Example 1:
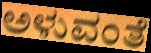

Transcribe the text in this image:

ಅಳುವಂತೆ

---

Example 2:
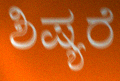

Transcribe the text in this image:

ಶಿಷ್ಯರೆ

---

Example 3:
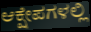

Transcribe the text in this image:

ಆಕ್ಷೇಪಗಳಲ್ಲಿ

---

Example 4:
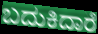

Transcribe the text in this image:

ಬದುಕಿದಾರೆ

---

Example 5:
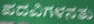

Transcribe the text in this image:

ಪದವಿಗಳನತು